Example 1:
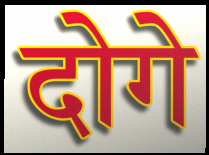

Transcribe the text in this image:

दोगे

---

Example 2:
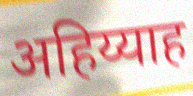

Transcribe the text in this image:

अहिय्याह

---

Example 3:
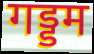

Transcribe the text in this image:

गड्डम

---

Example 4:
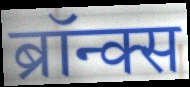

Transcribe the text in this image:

ब्रॉन्क्स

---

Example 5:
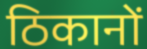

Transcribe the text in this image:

ठिकानों